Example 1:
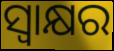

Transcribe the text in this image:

ସ୍ଵାକ୍ଷର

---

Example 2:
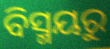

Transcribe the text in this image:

ବିସ୍ମୟରୁ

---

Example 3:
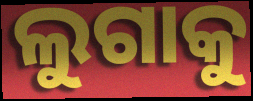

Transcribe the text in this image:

ଲୁଗାକୁ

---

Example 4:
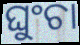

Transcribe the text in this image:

ଘୁଂଚା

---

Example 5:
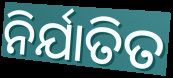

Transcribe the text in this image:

ନିର୍ଯାତିତ